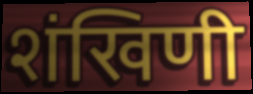
शंखिणी